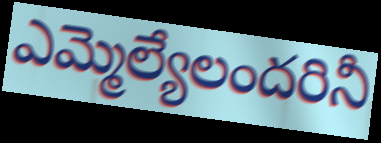
ఎమ్మెల్యేలందరినీ